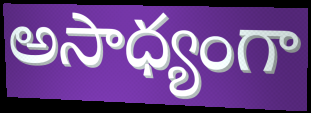
అసాధ్యంగా